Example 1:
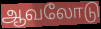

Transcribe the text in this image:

ஆவலோடு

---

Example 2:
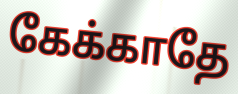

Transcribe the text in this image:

கேக்காதே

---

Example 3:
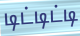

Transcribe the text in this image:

டிட்டிட்டி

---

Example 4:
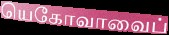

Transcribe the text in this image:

யெகோவாவைப்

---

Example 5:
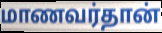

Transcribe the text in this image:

மாணவர்தான்